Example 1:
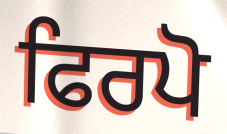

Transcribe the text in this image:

ਫਿਰਪੋ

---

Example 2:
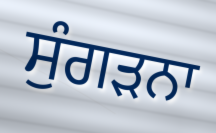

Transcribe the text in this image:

ਸੁੰਗੜਨਾ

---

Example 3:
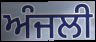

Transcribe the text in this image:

ਅੰਜਲੀ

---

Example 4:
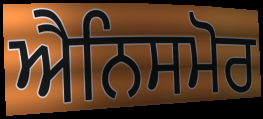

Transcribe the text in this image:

ਐਨਿਸਮੋਰ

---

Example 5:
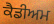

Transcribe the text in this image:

ਕੈਡੀਅਮ